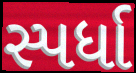
સ્પર્ધા